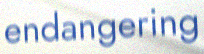
endangering